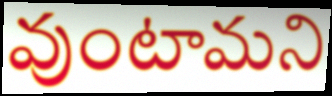
వుంటామని